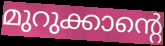
മുറുക്കാന്റെ